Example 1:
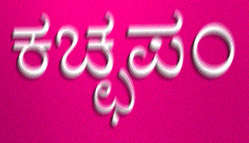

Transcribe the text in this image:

ಕಚ್ಛಪಂ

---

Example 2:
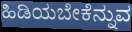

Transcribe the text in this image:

ಹಿಡಿಯಬೇಕೆನ್ನುವ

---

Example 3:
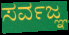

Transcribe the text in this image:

ಸರ್ವಜ್ಞ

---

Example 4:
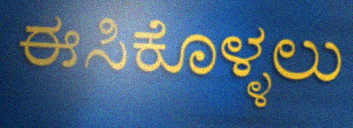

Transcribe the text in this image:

ಈಸಿಕೊಳ್ಳಲು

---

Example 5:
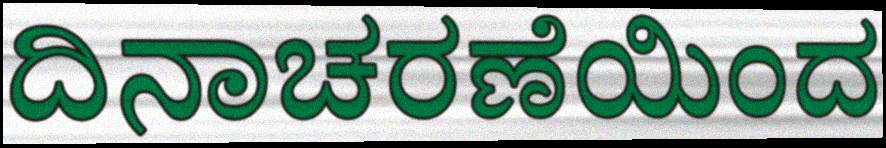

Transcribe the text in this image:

ದಿನಾಚರಣೆಯಿಂದ